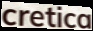
cretica